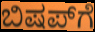
ಬಿಷಪ್‌ಗೆ